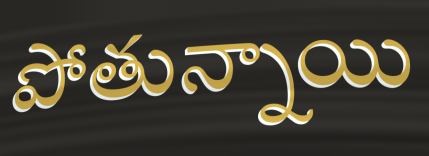
పోతున్నాయి